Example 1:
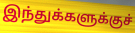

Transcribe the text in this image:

இந்துக்களுக்குச்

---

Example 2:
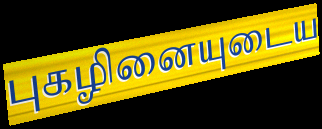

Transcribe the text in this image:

புகழினையுடைய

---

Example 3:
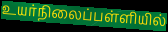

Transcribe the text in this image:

உயர்நிலைப்பள்ளியில்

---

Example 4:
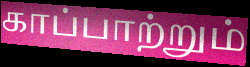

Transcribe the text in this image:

காப்பாற்றும்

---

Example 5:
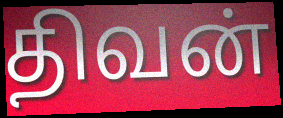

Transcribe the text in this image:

திவன்